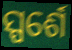
ସ୍ପର୍ଶେ